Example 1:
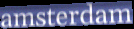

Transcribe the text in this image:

amsterdam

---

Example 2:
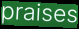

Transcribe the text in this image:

praises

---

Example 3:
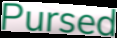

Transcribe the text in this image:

Pursed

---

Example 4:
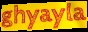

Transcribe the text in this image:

ghyayla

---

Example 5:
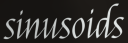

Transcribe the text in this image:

sinusoids